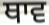
ਥਾਵ